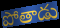
పోతాడు